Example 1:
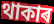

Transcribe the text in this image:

থাকাৰ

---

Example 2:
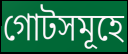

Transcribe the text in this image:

গোটসমূহে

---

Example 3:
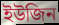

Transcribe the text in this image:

ইউজিন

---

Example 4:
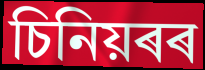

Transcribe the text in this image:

চিনিয়ৰৰ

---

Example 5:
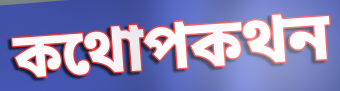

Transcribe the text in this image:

কথোপকথন